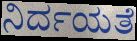
ನಿರ್ದಯತೆ